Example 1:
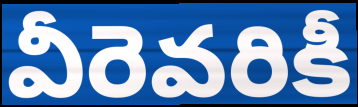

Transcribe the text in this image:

వీరెవరికీ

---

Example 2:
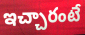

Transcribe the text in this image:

ఇచ్చారంటే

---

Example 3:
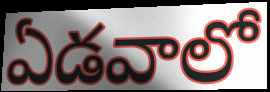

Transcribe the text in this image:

ఏడవాలో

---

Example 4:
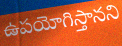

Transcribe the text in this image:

ఉపయోగిస్తానని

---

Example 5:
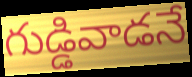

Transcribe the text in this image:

గుడ్డివాడనే